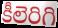
కీలెరిగి